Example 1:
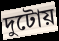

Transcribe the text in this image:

দুটোয়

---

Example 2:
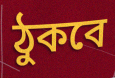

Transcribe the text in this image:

ঠুকবে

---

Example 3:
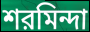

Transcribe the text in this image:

শরমিন্দা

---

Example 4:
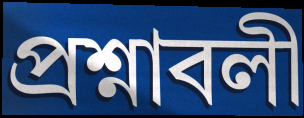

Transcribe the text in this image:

প্রশ্নাবলী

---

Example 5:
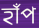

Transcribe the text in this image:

হাঁপ